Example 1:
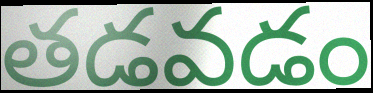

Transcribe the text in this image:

తడవడం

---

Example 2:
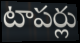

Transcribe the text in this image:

టాపర్లు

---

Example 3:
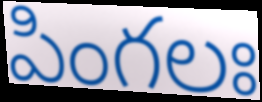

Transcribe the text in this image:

పింగలః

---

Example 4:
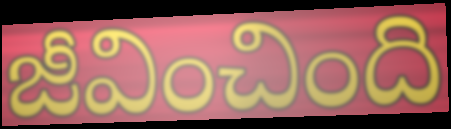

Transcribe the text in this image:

జీవించింది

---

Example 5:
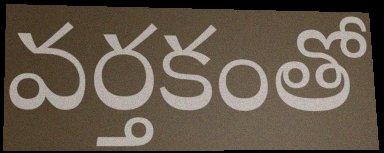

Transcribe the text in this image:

వర్తకంతో